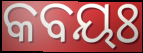
କବୟଃ